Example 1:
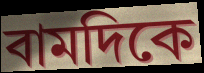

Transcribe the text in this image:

বামদিকে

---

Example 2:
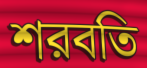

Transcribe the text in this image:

শরবতি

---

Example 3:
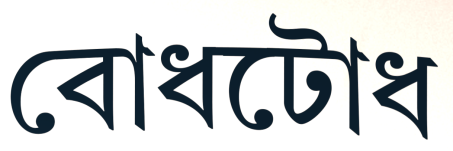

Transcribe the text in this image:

বোধটোধ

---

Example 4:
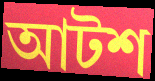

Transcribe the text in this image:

আটশ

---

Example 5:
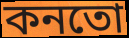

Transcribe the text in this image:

কনতো